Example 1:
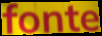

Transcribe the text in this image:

fonte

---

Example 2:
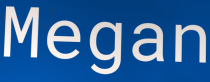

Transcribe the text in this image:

Megan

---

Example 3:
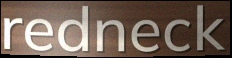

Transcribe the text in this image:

redneck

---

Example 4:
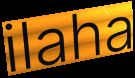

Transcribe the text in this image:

ilaha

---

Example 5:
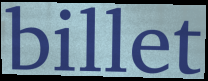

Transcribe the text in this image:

billet